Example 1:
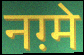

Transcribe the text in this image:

नग़्मे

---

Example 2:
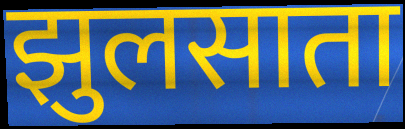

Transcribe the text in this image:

झुलसाता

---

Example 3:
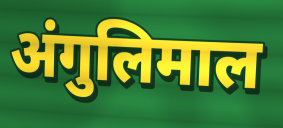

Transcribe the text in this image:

अंगुलिमाल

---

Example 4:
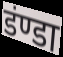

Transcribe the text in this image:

डंण्डा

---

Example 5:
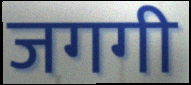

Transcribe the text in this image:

जगगी